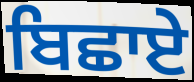
ਬਿਛਾਏ